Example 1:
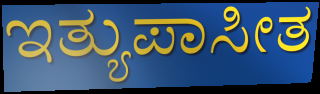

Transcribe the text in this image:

ಇತ್ಯುಪಾಸೀತ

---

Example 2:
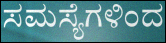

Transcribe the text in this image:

ಸಮಸ್ಯೆಗಳಿಂದ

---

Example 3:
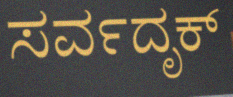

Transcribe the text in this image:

ಸರ್ವದೃಕ್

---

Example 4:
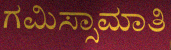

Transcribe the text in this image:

ಗಮಿಸ್ಸಾಮಾತಿ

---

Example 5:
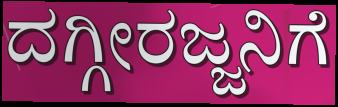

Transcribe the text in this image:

ದಗ್ಗೀರಜ್ಜನಿಗೆ